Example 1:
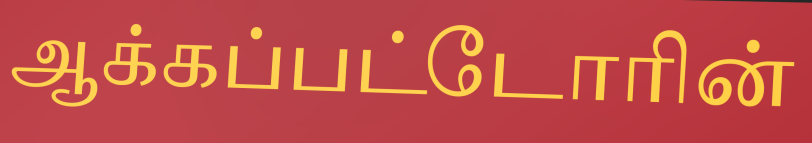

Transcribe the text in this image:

ஆக்கப்பட்டோரின்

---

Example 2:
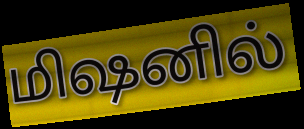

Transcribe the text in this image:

மிஷனில்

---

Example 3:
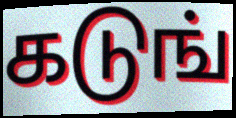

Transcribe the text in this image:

கடுங்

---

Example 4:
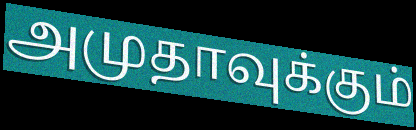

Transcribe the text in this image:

அமுதாவுக்கும்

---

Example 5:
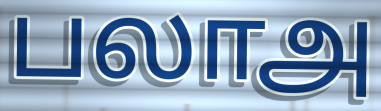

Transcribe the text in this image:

பலாஅ